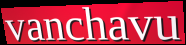
vanchavu